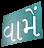
વામેં